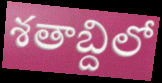
శతాబ్దిలో